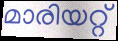
മാരിയറ്റ്